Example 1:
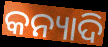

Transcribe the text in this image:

କନ୍ୟାଦି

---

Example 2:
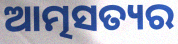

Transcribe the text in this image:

ଆତ୍ମସତ୍ୟର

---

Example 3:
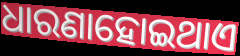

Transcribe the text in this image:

ଧାରଣାହୋଇଥାଏ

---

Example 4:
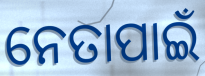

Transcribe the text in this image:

ନେତାପାଇଁ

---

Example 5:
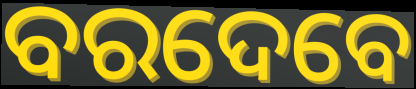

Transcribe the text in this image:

ବରଦେବେ